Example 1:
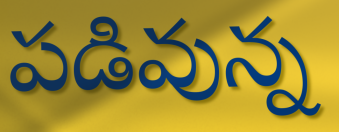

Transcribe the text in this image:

పడివున్న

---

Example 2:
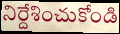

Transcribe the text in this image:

నిర్దేశించుకోండి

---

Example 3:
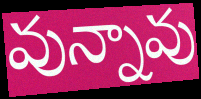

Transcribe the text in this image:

వున్నావు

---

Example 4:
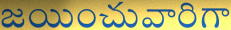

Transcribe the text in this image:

జయించువారిగా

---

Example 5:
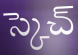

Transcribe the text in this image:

స్కెచ్